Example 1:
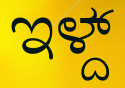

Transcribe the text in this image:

ಇಳ್ದ್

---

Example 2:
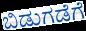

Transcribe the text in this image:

ಬಿಡುಗಡೆಗೆ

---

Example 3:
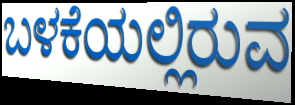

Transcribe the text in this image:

ಬಳಕೆಯಲ್ಲಿರುವ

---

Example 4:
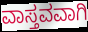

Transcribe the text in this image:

ವಾಸ್ತವವಾಗಿ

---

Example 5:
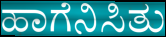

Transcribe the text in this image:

ಹಾಗೆನಿಸಿತು